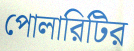
পোলারিটির